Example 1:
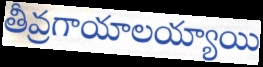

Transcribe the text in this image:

తీవ్రగాయాలయ్యాయి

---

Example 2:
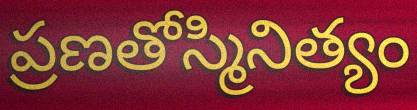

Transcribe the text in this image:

ప్రణతోస్మినిత్యం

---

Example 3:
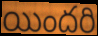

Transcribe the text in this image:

యిందరి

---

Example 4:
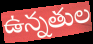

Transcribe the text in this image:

ఉన్నతుల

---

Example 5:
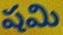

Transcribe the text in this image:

షమి